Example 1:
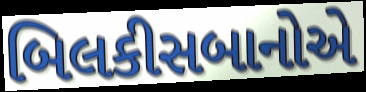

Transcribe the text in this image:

બિલકીસબાનોએ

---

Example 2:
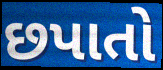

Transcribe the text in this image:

છપાતો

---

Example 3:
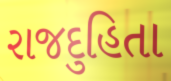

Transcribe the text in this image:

રાજદુહિતા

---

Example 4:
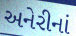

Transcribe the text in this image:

અનેરીનાં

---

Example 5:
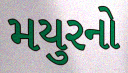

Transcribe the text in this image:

મયુરનો